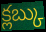
క్లబ్కు